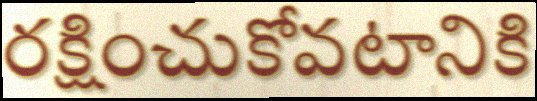
రక్షించుకోవటానికి